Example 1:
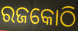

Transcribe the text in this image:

ରଜକୋଠି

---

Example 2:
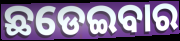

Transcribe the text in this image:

ଛଡେଇବାର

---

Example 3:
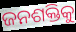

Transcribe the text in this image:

ଜନଶକ୍ତିକୁ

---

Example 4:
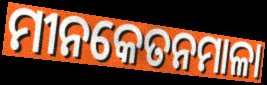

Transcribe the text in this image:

ମୀନକେତନମାଳା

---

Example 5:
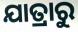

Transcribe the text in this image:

ଯାତ୍ରାରୁ